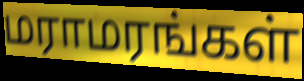
மராமரங்கள்